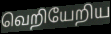
வெறியேறிய